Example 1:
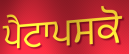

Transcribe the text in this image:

ਪੈਟਾਪਸਕੋ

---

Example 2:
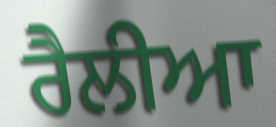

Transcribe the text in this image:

ਰੈਲੀਆ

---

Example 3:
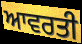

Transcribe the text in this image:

ਆਵਰਤੀ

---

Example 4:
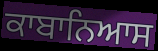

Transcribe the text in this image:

ਕਾਬਾਨਿਆਸ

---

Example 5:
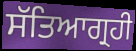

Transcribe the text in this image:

ਸੱਤਿਆਗ੍ਰਹੀ